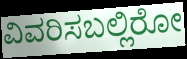
ವಿವರಿಸಬಲ್ಲಿರೋ